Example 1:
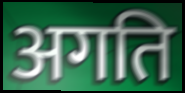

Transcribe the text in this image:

अगति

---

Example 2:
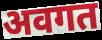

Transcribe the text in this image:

अवगत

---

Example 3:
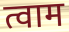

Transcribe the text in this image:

त्वाम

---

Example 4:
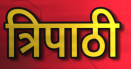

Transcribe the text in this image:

त्रिपाठी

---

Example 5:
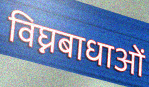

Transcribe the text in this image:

विघ्नबाधाओं